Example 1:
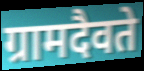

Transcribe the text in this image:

ग्रामदैवते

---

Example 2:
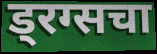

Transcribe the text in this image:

ड्रग्सचा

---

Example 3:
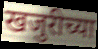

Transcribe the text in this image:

खजुरीच्या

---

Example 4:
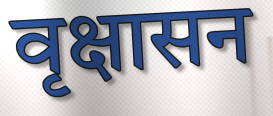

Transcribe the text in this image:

वृक्षासन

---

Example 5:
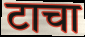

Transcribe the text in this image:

टाचा